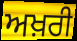
ਅਖ਼ਰੀ